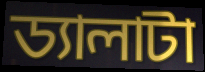
ড্যালাটা